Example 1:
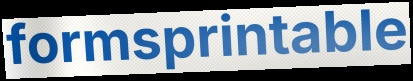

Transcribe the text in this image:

formsprintable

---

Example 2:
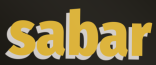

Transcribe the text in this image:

sabar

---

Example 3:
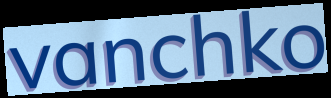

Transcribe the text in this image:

vanchko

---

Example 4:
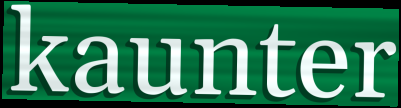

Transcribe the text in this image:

kaunter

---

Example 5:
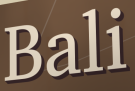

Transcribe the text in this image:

Bali